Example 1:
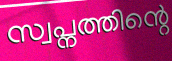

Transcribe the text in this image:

സ്വപ്നത്തിന്റെ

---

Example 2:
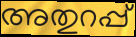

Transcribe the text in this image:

അതുറപ്പ്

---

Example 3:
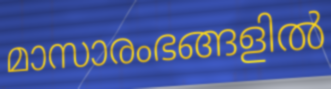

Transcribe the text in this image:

മാസാരംഭങ്ങളിൽ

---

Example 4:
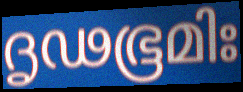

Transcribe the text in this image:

ദൃഢഭൂമിഃ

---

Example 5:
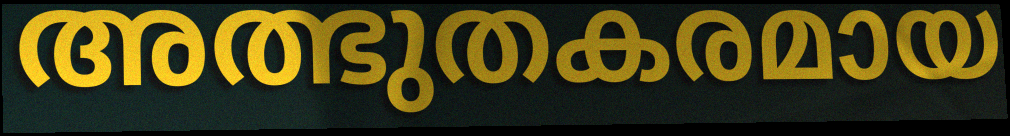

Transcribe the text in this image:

അത്ഭുതകരമായ